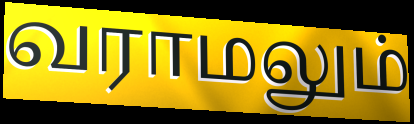
வராமலும்